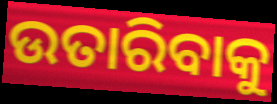
ଉତାରିବାକୁ